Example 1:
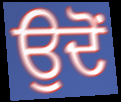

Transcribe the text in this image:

ਉਦੋਂ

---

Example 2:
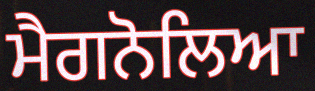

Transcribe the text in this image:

ਮੈਗਨੋਲਿਆ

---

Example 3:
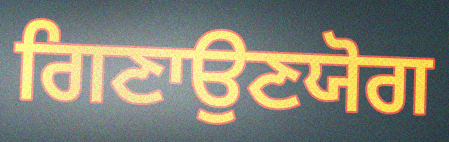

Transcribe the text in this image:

ਗਿਣਾਉਣਯੋਗ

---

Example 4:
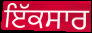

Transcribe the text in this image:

ਇੱਕਸਾਰ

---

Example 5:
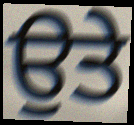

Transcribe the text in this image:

ਉਤੇ